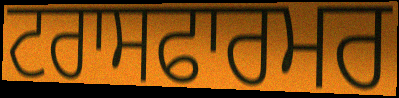
ਟਰਾਸਫਾਰਮਰ